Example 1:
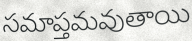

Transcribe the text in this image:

సమాప్తమవుతాయి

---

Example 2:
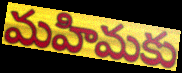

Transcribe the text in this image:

మహిమకు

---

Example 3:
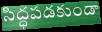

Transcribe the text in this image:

సిద్ధపడకుండా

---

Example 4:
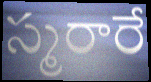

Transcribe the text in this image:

స్మరారే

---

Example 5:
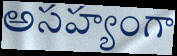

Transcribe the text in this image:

అసహ్యంగా